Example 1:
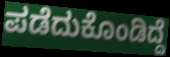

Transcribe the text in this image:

ಪಡೆದುಕೊಂಡಿದ್ದೆ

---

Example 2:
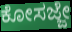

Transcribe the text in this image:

ಕೋಸಜ್ಜೇ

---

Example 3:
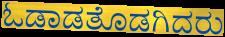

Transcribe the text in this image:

ಓಡಾಡತೊಡಗಿದರು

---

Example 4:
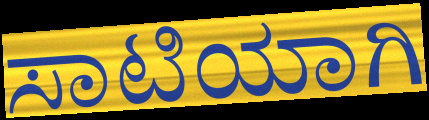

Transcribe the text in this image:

ಸಾಟಿಯಾಗಿ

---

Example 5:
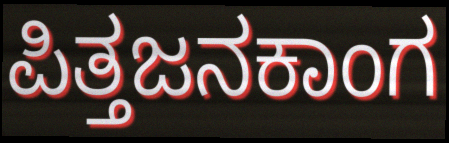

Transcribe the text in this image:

ಪಿತ್ತಜನಕಾಂಗ